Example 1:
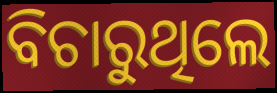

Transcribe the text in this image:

ବିଚାରୁଥିଲେ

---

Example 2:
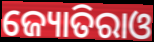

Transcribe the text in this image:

ଜ୍ୟୋତିରାଓ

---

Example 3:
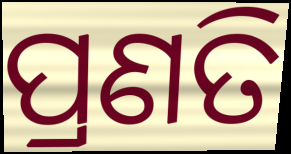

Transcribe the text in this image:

ପ୍ରଣତି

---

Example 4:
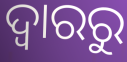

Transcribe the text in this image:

ଦ୍ଵାରରୁ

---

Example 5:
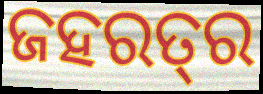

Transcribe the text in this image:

ଜହରତ୍‌ର